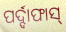
ପର୍ଦ୍ଦାଫାସ୍